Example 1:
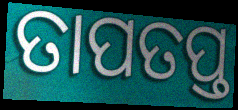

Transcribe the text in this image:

ତାପତପ୍ତ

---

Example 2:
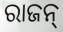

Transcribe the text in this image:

ରାଜନ୍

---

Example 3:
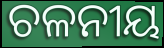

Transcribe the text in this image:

ଚଳନୀୟ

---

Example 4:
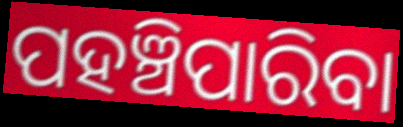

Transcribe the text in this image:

ପହଞ୍ଚିପାରିବା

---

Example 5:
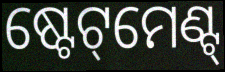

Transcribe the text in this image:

ଷ୍ଟେଟ୍‌ମେଣ୍ଟ୍